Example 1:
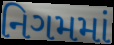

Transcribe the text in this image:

નિગમમાં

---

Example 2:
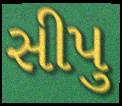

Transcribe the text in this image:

સીપુ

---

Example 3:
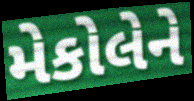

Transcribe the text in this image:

મેકોલેને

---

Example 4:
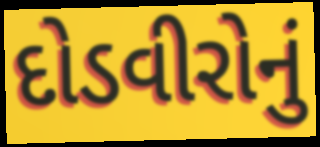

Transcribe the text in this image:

દોડવીરોનું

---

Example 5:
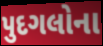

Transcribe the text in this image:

પુદગલોના